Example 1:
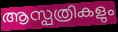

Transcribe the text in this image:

ആസ്പത്രികളും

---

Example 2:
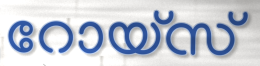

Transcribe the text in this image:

റോയ്സ്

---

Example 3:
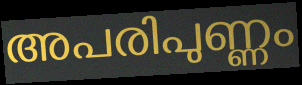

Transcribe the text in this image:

അപരിപുണ്ണം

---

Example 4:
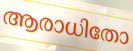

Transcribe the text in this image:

ആരാധിതോ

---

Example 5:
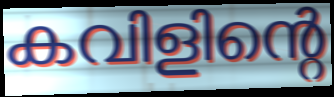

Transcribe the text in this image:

കവിളിന്റെ